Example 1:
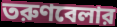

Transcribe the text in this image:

তরুণবেলার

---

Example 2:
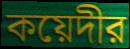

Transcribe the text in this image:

কয়েদীর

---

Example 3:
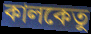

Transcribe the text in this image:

কালকেতু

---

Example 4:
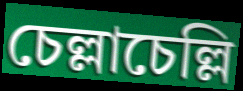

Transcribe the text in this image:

চেল্লাচেল্লি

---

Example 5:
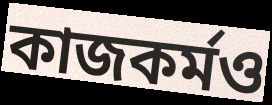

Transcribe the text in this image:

কাজকর্মও